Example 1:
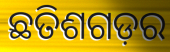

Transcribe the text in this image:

ଛତିଶଗଡ଼ର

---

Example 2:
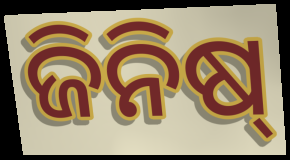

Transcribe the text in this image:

ଜିନିଷ୍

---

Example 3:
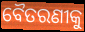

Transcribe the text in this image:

ବୈତରଣୀକୁ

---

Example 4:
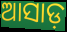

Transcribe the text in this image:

ଆସାଡ଼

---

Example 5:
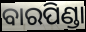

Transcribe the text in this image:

ବାରପିଣ୍ଡା